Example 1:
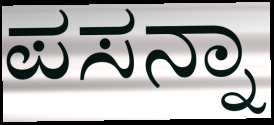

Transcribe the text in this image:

ಪಸನ್ನಾ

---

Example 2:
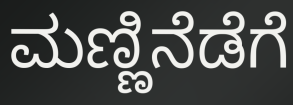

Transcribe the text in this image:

ಮಣ್ಣಿನೆಡೆಗೆ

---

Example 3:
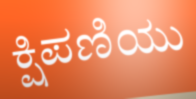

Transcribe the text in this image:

ಕ್ಷಿಪಣಿಯು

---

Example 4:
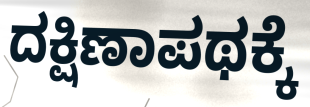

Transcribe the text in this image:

ದಕ್ಷಿಣಾಪಥಕ್ಕೆ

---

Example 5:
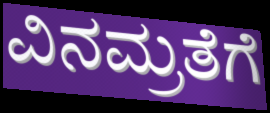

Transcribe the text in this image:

ವಿನಮ್ರತೆಗೆ